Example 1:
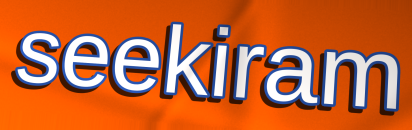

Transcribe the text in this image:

seekiram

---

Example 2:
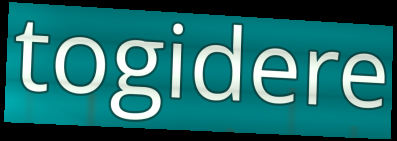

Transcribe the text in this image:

togidere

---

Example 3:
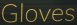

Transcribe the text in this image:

Gloves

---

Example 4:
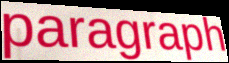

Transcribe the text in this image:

paragraph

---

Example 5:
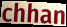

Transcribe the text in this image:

chhan